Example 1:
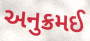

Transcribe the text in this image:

અનુક્રમઈ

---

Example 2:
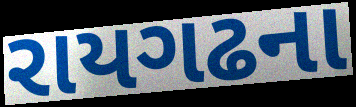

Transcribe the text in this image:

રાયગઢના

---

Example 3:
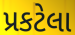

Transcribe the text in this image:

પ્રકટેલા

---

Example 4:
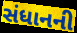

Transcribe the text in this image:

સંધાનની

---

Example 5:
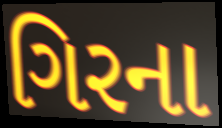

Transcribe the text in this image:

ગિરના